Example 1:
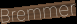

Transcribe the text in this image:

Bremmer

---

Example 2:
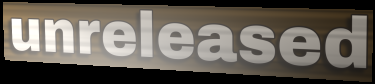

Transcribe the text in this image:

unreleased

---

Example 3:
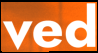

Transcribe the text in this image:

ved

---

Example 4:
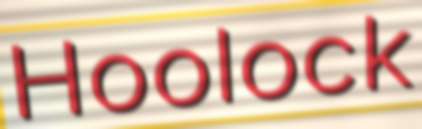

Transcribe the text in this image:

Hoolock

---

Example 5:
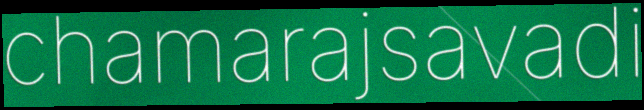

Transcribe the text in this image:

chamarajsavadi